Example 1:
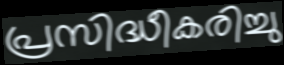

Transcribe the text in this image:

പ്രസിദ്ധീകരിച്ചു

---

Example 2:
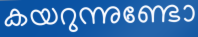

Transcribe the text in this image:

കയറുന്നുണ്ടോ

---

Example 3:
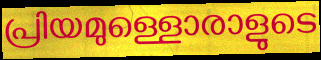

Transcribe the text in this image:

പ്രിയമുള്ളൊരാളുടെ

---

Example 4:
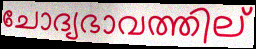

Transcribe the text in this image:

ചോദ്യഭാവത്തില്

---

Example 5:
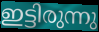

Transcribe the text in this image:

ഇട്ടിരുന്നു